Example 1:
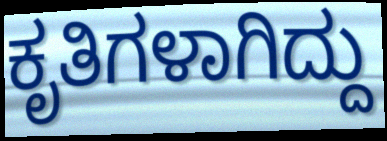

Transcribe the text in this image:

ಕೃತಿಗಳಾಗಿದ್ದು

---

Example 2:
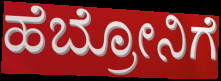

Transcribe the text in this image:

ಹೆಬ್ರೋನಿಗೆ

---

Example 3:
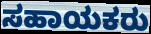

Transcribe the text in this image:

ಸಹಾಯಕರು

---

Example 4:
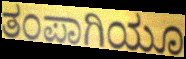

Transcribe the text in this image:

ತಂಪಾಗಿಯೂ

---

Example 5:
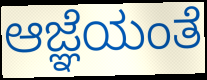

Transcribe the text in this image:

ಆಜ್ಞೆಯಂತೆ